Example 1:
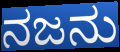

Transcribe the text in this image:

ನಜನು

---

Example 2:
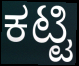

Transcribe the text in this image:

ಕಟ್ಟಿ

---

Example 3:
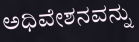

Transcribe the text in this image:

ಅಧಿವೇಶನವನ್ನು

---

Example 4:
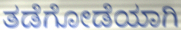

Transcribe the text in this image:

ತಡೆಗೋಡೆಯಾಗಿ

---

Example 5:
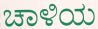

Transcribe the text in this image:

ಚಾಳಿಯ